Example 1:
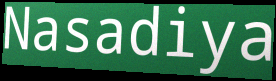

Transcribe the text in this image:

Nasadiya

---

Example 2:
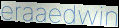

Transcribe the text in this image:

eraaedwin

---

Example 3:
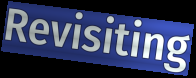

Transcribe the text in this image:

Revisiting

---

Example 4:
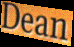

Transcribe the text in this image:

Dean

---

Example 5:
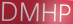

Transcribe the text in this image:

DMHP